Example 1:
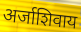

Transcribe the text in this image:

अर्जाशिवाय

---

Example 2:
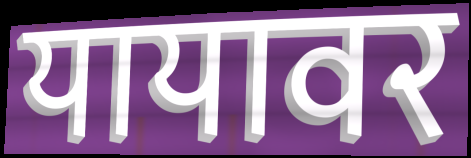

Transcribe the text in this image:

यायावर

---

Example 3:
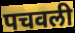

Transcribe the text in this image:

पचवली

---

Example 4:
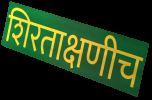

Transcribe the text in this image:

शिरताक्षणीच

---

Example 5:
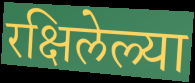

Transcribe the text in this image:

रक्षिलेल्या